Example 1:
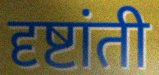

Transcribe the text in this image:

दृष्टांती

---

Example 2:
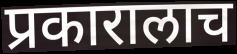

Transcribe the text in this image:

प्रकारालाच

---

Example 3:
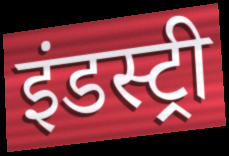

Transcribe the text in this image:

इंडस्ट्री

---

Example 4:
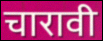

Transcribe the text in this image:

चारावी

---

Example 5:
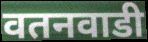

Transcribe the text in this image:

वतनवाडी